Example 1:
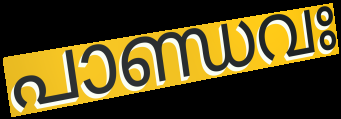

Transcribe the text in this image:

പാണ്ഡവഃ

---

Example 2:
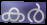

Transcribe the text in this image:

കർ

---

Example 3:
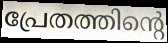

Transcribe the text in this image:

പ്രേതത്തിന്റെ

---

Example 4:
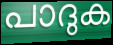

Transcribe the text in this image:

പാദുക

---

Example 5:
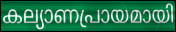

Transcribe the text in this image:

കല്യാണപ്രായമായി